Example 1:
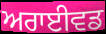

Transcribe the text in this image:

ਅਰਾਈਵਡ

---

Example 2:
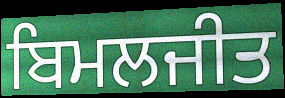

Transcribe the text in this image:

ਬਿਮਲਜੀਤ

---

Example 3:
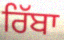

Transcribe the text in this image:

ਰਿੱਬਾ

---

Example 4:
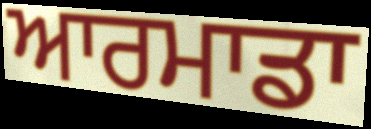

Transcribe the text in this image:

ਆਰਮਾਡਾ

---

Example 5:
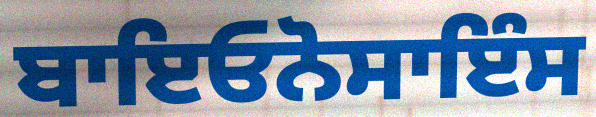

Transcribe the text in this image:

ਬਾਇਓਨੋਸਾਇੰਸ